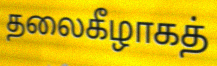
தலைகீழாகத்